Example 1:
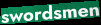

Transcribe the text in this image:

swordsmen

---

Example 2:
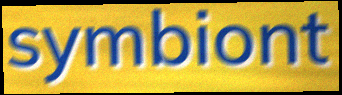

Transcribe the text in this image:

symbiont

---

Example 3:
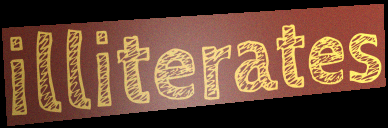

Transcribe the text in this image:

illiterates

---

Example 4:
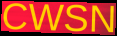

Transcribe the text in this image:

CWSN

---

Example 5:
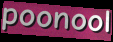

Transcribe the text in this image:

poonool